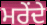
ਮਰੇਂਦੇ